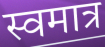
स्वमात्र